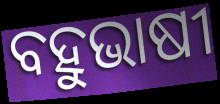
ବହୁଭାଷୀ